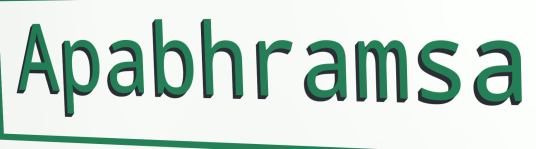
Apabhramsa